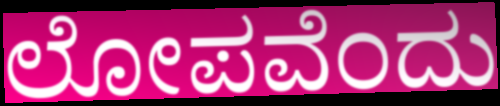
ಲೋಪವೆಂದು